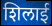
शिलाई